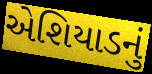
એશિયાડનું